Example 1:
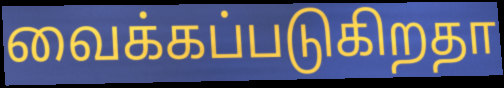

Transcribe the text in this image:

வைக்கப்படுகிறதா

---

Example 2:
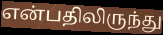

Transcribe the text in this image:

என்பதிலிருந்து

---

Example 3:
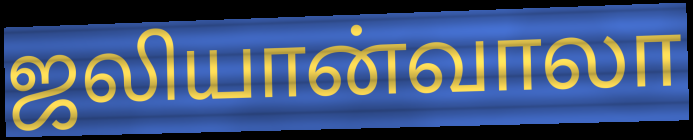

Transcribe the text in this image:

ஜலியான்வாலா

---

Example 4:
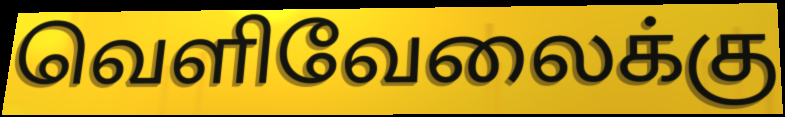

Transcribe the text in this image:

வெளிவேலைக்கு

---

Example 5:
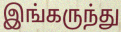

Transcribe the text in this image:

இங்கருந்து